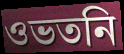
ওভতনি